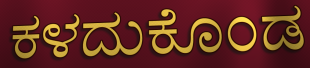
ಕಳದುಕೊಂಡ